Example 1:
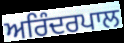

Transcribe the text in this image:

ਅਰਿੰਦਰਪਾਲ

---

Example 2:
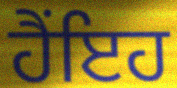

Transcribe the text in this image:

ਹੈਂਇਹ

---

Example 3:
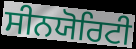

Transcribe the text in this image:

ਸੀਨਯੋਰਿਟੀ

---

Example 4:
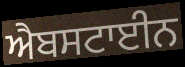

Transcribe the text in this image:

ਐਬਸਟਾਈਨ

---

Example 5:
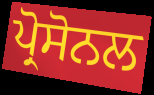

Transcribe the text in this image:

ਪ੍ਰੋਸੋਨਲ